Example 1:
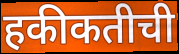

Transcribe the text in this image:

हकीकतीची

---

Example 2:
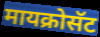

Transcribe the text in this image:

मायक्रोसॅट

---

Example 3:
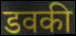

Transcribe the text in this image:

डवकी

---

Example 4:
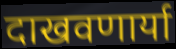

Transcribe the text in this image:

दाखवणार्या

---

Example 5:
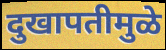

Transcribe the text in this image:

दुखापतीमुळे